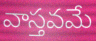
వాస్తవమే